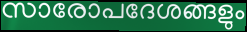
സാരോപദേശങ്ങളും